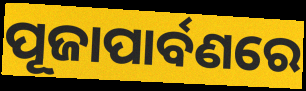
ପୂଜାପାର୍ବଣରେ